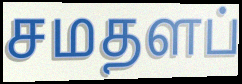
சமதளப்